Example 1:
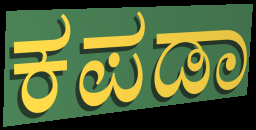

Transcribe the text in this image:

ಕಪಡಾ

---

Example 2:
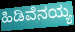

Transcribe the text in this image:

ಹಿಡಿವೆನಯ್ಯ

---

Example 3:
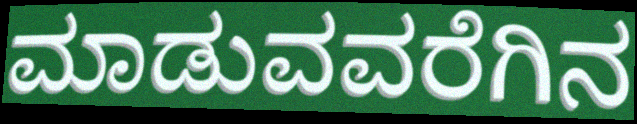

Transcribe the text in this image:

ಮಾಡುವವರೆಗಿನ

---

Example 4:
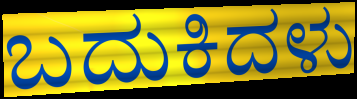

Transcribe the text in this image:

ಬದುಕಿದಳು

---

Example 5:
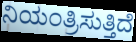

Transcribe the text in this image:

ನಿಯಂತ್ರಿಸುತ್ತಿದೆ